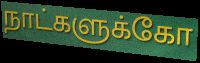
நாட்களுக்கோ